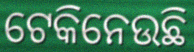
ଟେକିନେଉଛି